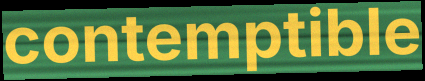
contemptible